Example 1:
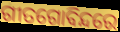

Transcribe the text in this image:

ଗୀତଗୋବିନ୍ଦରେ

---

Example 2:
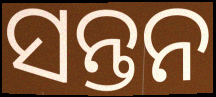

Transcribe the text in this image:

ସନ୍ତନ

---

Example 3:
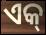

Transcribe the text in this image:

ଏକ୍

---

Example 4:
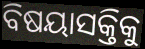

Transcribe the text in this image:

ବିଷୟାସକ୍ତିକୁ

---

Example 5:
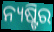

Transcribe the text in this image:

ନ୍ୟଷ୍ଟିର